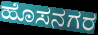
ಹೊಸನಗರ